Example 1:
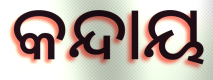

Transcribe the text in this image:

କନ୍ଦାୟ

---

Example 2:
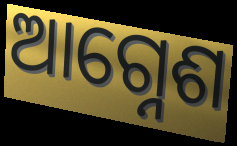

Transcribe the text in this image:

ଆଗ୍ନେଶ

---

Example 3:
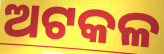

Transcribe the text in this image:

ଅଟକଳ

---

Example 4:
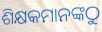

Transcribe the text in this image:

ଶିକ୍ଷକମାନଙ୍କଠୁ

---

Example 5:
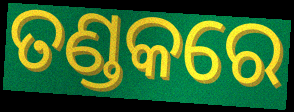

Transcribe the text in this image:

ତଣ୍ଡକରେ